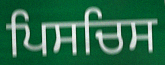
ਪਿਸਚਿਸ